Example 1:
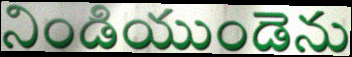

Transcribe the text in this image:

నిండియుండెను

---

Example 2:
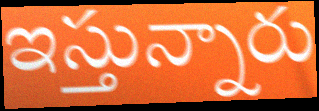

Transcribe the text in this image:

ఇస్తున్నారు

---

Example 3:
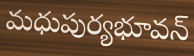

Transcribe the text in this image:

మధుపుర్యభూవన్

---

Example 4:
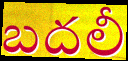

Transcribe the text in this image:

బదలీ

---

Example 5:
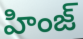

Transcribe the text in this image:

హింజ్